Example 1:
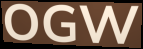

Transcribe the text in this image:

OGW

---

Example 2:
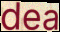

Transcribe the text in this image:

dea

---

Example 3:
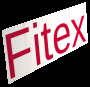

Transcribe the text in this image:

Fitex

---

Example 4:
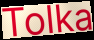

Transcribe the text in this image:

Tolka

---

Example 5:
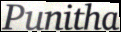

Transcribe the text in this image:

Punitha